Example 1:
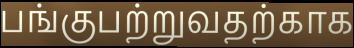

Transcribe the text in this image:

பங்குபற்றுவதற்காக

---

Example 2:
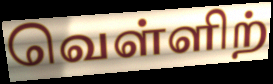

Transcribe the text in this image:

வெள்ளிற்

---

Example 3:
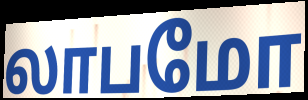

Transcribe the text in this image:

லாபமோ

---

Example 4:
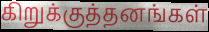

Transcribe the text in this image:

கிறுக்குத்தனங்கள்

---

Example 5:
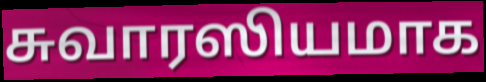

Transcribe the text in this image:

சுவாரஸியமாக